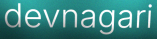
devnagari